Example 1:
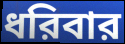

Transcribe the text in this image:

ধরিবার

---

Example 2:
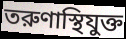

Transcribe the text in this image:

তরুণাস্থিযুক্ত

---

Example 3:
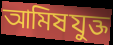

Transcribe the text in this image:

আমিষযুক্ত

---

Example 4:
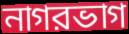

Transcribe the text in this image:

নাগরভাগ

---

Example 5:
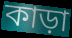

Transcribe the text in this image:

কাড়া